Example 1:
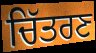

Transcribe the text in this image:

ਚਿੱਤਰਣ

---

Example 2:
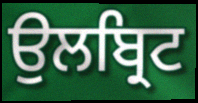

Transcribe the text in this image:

ਉਲਬ੍ਰਿਟ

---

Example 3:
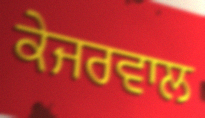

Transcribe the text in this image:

ਕੇਜਰਵਾਲ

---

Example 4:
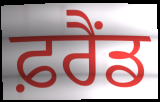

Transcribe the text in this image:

ਫ਼ਰੈਂਡ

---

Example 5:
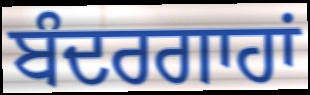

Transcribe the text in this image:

ਬੰਦਰਗਾਹਾਂ